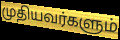
முதியவர்களும்